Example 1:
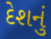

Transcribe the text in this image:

દેશનું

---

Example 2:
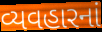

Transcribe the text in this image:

વ્યવહારનાં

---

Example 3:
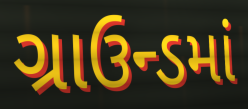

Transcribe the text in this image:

ગ્રાઉન્ડમાં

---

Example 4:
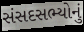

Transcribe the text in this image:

સંસદસભ્યોનું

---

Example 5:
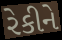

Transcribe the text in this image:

રેકીને